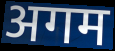
अगम